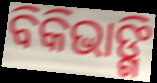
ବିକିଭାଙ୍ଗି